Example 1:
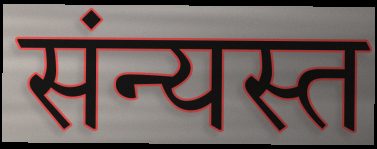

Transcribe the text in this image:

संन्यस्त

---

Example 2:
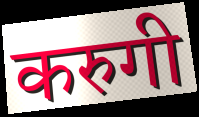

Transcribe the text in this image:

करुगी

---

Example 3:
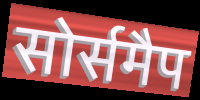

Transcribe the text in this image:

सोर्समैप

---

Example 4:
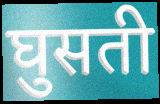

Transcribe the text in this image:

घुसती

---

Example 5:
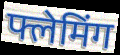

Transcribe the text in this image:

फ्लेमिंग